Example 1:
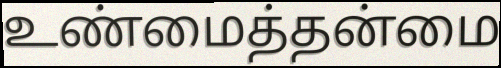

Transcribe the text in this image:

உண்மைத்தன்மை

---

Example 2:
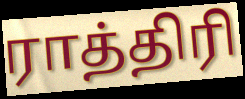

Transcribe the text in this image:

ராத்திரி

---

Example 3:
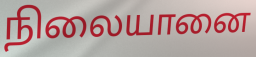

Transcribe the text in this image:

நிலையானை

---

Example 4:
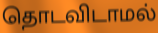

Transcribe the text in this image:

தொடவிடாமல்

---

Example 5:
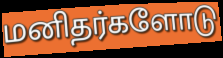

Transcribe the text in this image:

மனிதர்களோடு